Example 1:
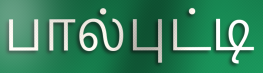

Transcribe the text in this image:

பால்புட்டி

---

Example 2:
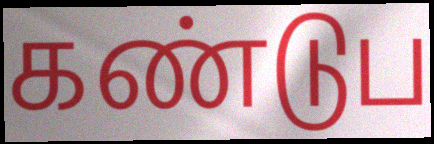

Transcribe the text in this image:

கண்டுப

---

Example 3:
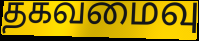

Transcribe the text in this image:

தகவமைவு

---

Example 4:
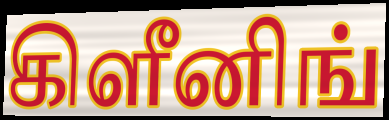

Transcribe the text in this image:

கிளீனிங்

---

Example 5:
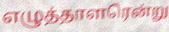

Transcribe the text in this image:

எழுத்தாளரென்று